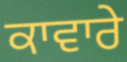
ਕਾਵਾਰੇ